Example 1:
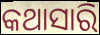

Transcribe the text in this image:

କଥାସାରି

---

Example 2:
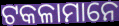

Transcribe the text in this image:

ଟକଳାମାନେ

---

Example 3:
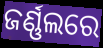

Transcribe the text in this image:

ଜର୍ଣ୍ଣଲରେ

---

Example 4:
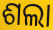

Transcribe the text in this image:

ଶଲା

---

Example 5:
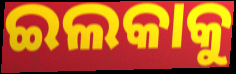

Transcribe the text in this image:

ଇଲକାକୁ